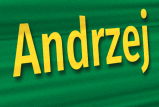
Andrzej